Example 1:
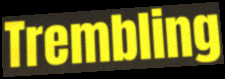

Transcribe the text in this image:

Trembling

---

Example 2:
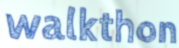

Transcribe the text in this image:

walkthon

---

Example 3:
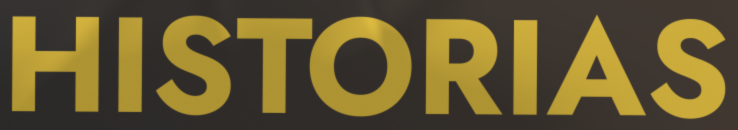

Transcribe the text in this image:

HISTORIAS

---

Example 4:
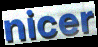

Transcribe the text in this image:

nicer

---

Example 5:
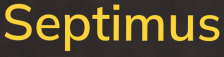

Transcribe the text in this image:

Septimus